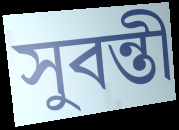
সুবন্তী